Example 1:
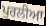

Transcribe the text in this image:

ਪੁਰਲੀਆ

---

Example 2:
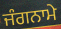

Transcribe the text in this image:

ਜੰਗਨਾਮੇ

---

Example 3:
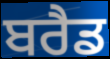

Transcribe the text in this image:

ਬਰੈਡ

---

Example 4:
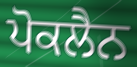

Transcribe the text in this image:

ਪੋਕਲੈਨ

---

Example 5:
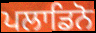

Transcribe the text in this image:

ਪਲਾਡਿਨੋ